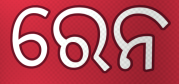
ରେନ